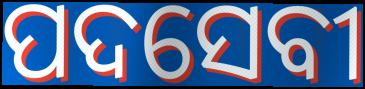
ପଦସେବୀ